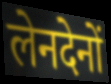
लेनदेनों